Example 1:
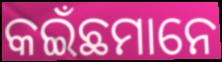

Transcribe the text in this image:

କଇଁଛମାନେ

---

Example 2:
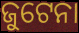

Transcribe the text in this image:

ଜୁଟେନା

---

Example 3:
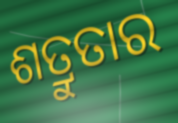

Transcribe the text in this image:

ଶତ୍ରୁତାର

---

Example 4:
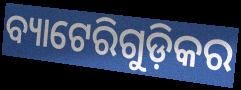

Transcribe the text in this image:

ବ୍ୟାଟେରିଗୁଡ଼ିକର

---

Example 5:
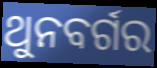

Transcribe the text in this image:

ଥୁନବର୍ଗର